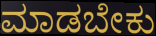
ಮಾಡಬೇಕು